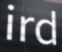
ird